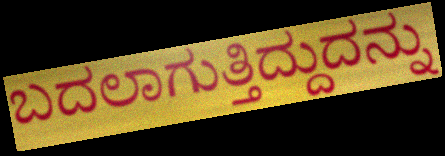
ಬದಲಾಗುತ್ತಿದ್ದುದನ್ನು